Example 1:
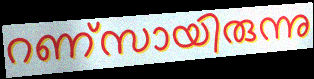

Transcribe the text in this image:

റണ്സായിരുന്നു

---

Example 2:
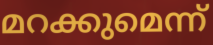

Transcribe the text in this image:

മറക്കുമെന്ന്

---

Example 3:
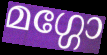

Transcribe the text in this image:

മഗ്ഗോ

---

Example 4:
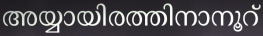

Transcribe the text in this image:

അയ്യായിരത്തിനാനൂറ്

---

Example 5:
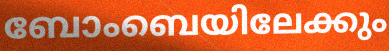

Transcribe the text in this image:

ബോംബെയിലേക്കും